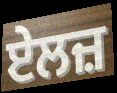
ਏਲਜ਼